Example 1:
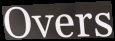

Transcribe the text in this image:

Overs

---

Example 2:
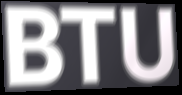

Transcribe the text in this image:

BTU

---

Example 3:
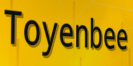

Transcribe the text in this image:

Toyenbee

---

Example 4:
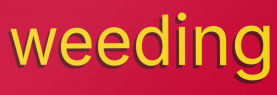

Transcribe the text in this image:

weeding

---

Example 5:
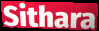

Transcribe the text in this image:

Sithara